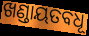
ଖଣ୍ଡାୟତବଧୂ